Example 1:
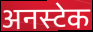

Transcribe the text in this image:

अनस्टेक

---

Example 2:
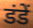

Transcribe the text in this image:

डंडें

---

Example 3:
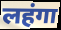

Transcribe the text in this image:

लहंगा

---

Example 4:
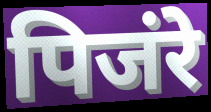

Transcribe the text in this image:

पिजंरे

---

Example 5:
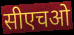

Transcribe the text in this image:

सीएचओ